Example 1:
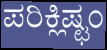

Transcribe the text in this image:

ಪರಿಕ್ಲಿಷ್ಟಂ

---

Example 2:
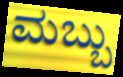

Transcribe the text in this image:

ಮಬ್ಬು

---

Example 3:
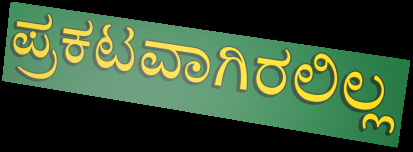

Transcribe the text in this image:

ಪ್ರಕಟವಾಗಿರಲಿಲ್ಲ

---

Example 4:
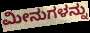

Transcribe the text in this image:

ಮೀನುಗಳನ್ನು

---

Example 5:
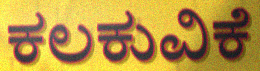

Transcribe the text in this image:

ಕಲಕುವಿಕೆ